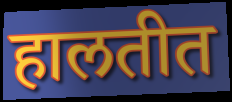
हालतीत